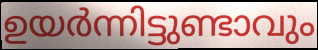
ഉയർന്നിട്ടുണ്ടാവും